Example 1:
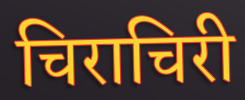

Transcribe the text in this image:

चिराचिरी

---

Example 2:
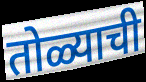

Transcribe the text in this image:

तोळ्याची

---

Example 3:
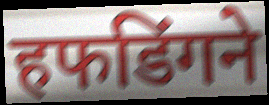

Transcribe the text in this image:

हफडिंगने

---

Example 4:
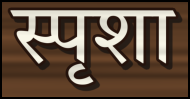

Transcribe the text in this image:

स्पृशा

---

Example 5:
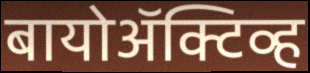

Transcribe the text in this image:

बायोॲक्टिव्ह